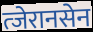
त्जेरानसेन